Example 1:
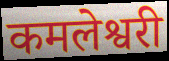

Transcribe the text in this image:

कमलेश्वरी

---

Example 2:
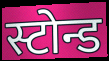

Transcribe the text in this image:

स्टोन्ड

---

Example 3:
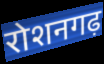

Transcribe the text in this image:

रोशनगढ़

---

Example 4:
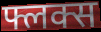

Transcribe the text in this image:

फ्लक्स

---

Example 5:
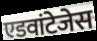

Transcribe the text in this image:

एडवांटेजेस